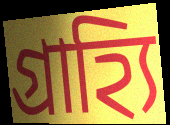
গ্রাহ্যি